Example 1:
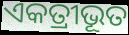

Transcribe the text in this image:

ଏକତ୍ରୀଭୂତ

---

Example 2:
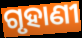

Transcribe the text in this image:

ଗୃହାଣୀ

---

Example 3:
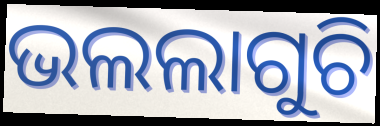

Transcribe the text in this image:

ଭଲଲାଗୁଚି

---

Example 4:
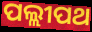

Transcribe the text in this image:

ପଲ୍ଲୀପଥ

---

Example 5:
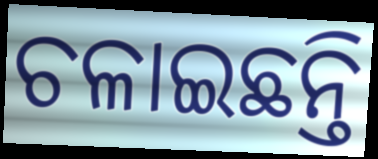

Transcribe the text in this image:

ଚଳାଇଛନ୍ତି